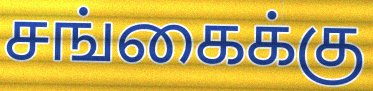
சங்கைக்கு